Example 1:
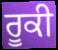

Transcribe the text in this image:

ਰੂਕੀ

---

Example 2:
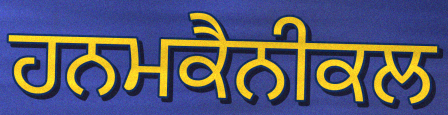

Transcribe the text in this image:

ਹਨਮਕੈਨੀਕਲ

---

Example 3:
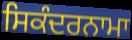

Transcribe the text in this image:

ਸਿਕੰਦਰਨਾਮਾ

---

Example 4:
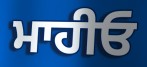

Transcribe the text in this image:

ਮਾਹੀਓ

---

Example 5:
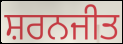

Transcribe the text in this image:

ਸ਼ਰਨਜੀਤ